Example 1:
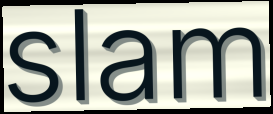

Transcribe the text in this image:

slam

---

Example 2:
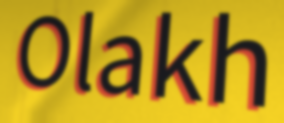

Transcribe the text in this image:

Olakh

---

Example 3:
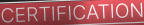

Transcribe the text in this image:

CERTIFICATION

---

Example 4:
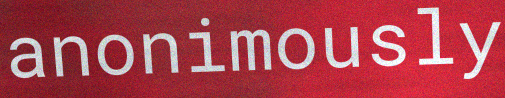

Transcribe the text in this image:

anonimously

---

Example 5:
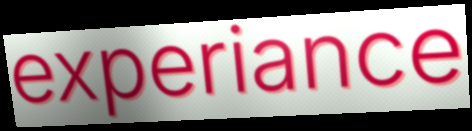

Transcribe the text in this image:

experiance